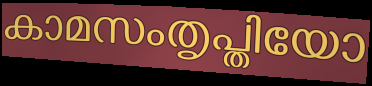
കാമസംതൃപ്തിയോ